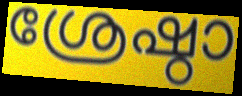
ശ്രേഷ്ഠാ